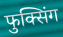
फुक्सिंग